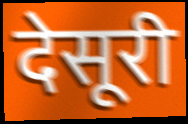
देसूरी